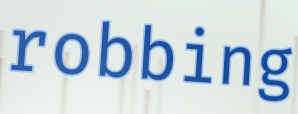
robbing